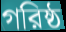
গরিষ্ঠ